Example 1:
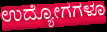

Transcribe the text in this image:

ಉದ್ಯೋಗಗಳೂ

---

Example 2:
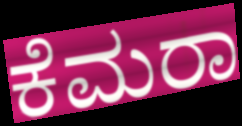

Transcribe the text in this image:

ಕೆಮರಾ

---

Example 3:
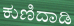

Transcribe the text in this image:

ಕುಣಿದಾಡಿ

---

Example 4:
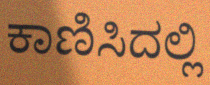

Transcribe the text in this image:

ಕಾಣಿಸಿದಲ್ಲಿ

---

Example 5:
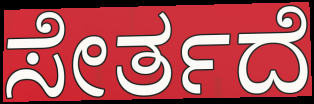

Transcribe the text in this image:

ಸೇರ್ತದೆ